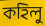
কহিলু